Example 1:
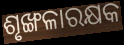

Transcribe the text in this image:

ଶୃଙ୍ଖଳାରକ୍ଷକ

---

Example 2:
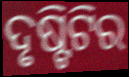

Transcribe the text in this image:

ଦୃଷ୍ଟିଟିର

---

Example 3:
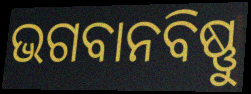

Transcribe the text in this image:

ଭଗବାନବିଷ୍ଣୁ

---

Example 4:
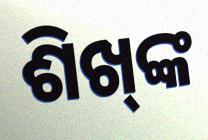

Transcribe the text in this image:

ଶିଖ୍‍ଙ୍କ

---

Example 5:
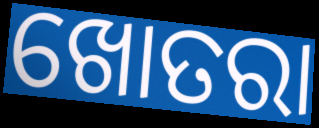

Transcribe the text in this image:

ଖୋତରା